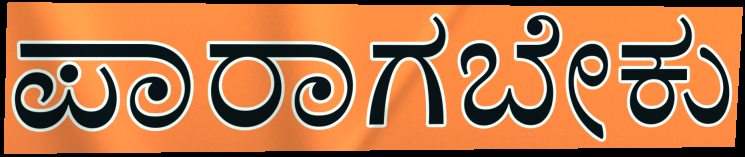
ಪಾರಾಗಬೇಕು